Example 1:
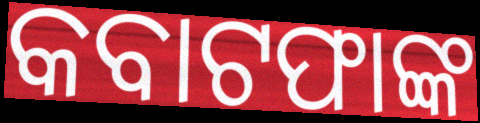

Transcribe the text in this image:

କବାଟଫାଙ୍କ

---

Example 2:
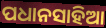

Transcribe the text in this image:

ପଧାନସାହିଆ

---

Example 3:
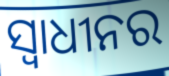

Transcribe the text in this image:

ସ୍ୱାଧୀନର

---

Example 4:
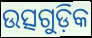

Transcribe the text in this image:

ଉତ୍ସଗୁଡ଼ିକ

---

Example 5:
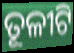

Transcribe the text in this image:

ତୂଳୀଟି